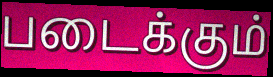
படைக்கும்